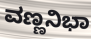
ವಣ್ಣನಿಭಾ